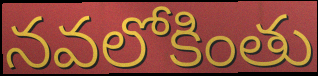
నవలోకింతు